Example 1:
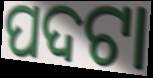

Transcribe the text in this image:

ପଦଟା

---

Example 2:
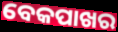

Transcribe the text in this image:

ବେକପାଖର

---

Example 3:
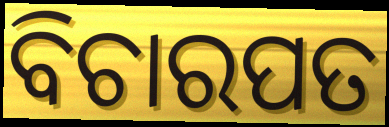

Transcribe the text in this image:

ବିଚାରପତ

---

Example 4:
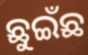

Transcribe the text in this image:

ଛୁଇଁଛ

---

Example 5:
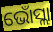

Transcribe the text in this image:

ଭୋଁସ୍ଲା